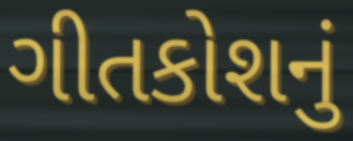
ગીતકોશનું